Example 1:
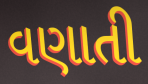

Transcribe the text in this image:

વણાતી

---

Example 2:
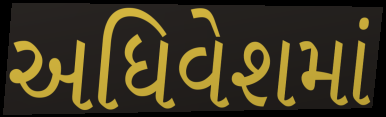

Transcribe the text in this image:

અધિવેશમાં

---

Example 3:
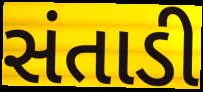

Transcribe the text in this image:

સંતાડી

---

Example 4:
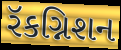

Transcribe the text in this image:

રૅકગ્નિશન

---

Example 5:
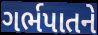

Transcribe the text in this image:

ગર્ભપાતને